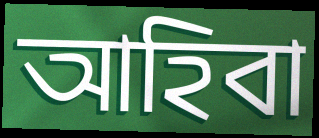
আহিবা